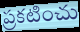
ప్రకటించు